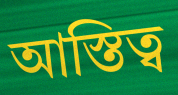
আস্তিত্ব